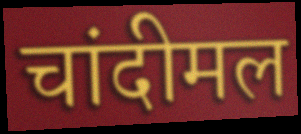
चांदीमल